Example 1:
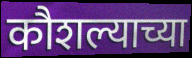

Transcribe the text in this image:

कौशल्याच्या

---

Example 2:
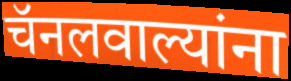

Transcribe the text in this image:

चॅनलवाल्यांना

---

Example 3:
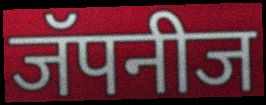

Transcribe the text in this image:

जॅपनीज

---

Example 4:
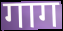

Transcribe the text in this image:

गाग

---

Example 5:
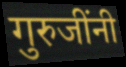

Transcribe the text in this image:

गुरुजींनी